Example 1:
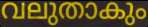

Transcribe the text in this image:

വലുതാകും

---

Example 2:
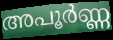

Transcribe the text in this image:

അപൂർണ്ണ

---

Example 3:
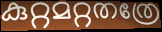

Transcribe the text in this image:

കുറ്റമറ്റതത്രേ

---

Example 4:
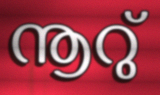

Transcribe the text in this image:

നൂറു്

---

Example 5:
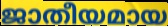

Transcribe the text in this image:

ജാതീയമായ